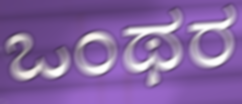
ಒಂಥರ